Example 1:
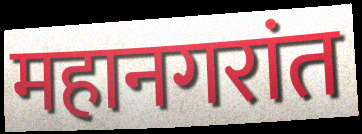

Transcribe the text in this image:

महानगरांत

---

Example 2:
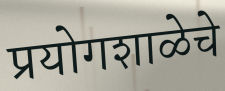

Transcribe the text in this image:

प्रयोगशाळेचे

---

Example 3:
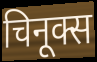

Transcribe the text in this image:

चिनूक्स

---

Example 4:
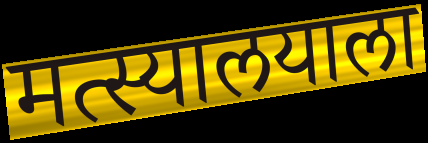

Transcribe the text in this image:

मत्स्यालयाला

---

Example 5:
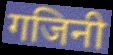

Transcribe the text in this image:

गजिनी